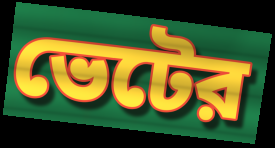
ভেটের